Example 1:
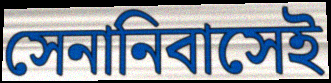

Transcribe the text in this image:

সেনানিবাসেই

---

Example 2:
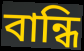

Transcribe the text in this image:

বান্ধি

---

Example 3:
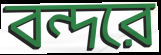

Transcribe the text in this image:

বন্দরে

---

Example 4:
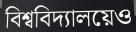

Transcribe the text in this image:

বিশ্ববিদ্যালয়েও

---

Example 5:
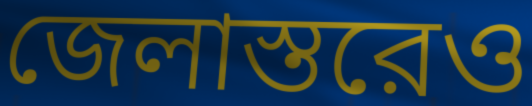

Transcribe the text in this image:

জেলাস্তরেও